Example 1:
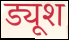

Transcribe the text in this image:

ड्यूश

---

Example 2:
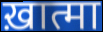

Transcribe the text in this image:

ख़ात्मा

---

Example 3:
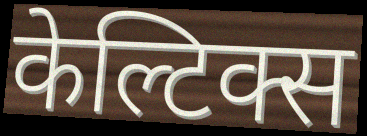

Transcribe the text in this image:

केल्टिक्स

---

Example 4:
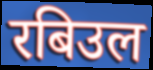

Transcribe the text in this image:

रबिउल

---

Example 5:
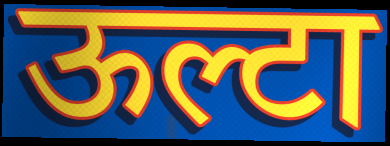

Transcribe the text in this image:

ऊल्टा